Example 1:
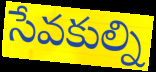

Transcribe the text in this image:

సేవకుల్ని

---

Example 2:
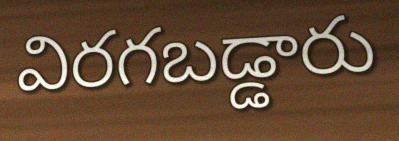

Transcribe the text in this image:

విరగబడ్డారు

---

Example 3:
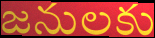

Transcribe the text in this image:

జనులకు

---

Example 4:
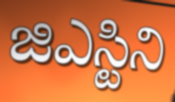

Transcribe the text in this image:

జిఎస్టిని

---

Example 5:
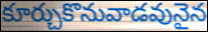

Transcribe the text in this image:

కూర్చుకొనువాడవునైన